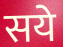
सये